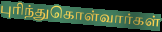
புரிந்துகொள்வார்கள்